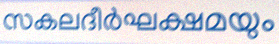
സകലദീർഘക്ഷമയും